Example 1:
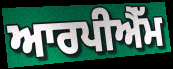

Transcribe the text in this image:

ਆਰਪੀਐੱਮ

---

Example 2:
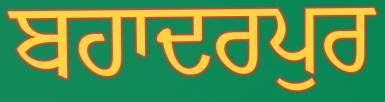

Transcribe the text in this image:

ਬਹਾਦਰਪੁਰ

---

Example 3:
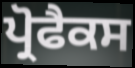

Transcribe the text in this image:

ਪ੍ਰੋਫੈਕਸ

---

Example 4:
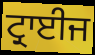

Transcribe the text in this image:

ਟ੍ਰਾਈਜ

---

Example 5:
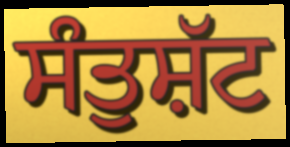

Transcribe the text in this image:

ਸੰਤੁਸ਼ੱਟ